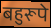
बहुरूपे